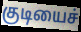
குடியைச்